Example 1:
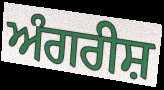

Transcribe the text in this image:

ਅੰਗਰੀਸ਼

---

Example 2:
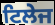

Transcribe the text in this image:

ਟਿਲੇਜ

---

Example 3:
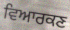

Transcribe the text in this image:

ਵਿਆਰਕਣ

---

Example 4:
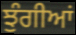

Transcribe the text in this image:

ਝੁੰਗੀਆਂ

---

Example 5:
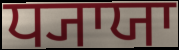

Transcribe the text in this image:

ਧ੍ਯਾਯਾ